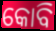
କୋବି